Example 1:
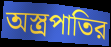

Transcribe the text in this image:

অস্ত্রপাতির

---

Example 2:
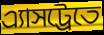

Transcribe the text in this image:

এ্যাসট্রেতে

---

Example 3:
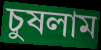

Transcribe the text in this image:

চুষলাম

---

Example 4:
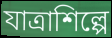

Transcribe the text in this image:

যাত্রাশিল্পে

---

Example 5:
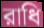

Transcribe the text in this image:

রাধি